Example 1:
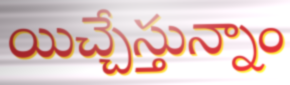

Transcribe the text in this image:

యిచ్చేస్తున్నాం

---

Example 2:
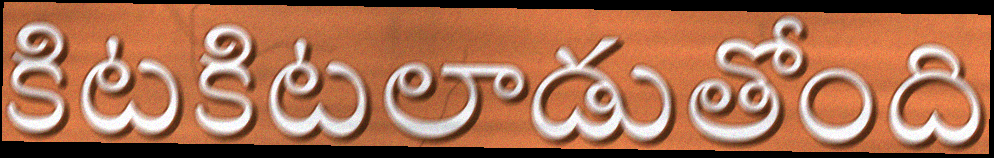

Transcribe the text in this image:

కిటకిటలాడుతోంది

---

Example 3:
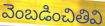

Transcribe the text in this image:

వెంబడించితివి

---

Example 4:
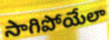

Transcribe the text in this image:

సాగిపోయేలా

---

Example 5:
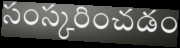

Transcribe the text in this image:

సంస్కరించడం